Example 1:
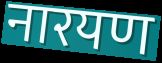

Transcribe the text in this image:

नारयण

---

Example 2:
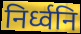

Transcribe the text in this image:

निर्ध्वनि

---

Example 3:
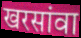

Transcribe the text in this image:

खरसांवा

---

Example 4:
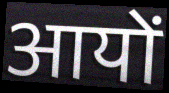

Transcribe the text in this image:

आयों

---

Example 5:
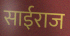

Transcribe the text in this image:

साईराज